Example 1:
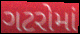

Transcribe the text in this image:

ગટરોમાં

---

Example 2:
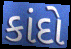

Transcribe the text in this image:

કાંદો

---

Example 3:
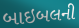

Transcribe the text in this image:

બાઇબલની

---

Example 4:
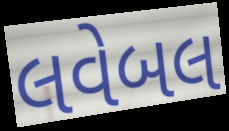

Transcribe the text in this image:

લવેબલ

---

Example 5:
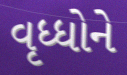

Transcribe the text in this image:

વૃધ્ધોને